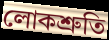
লোকশ্রুতি